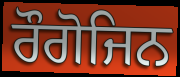
ਰੌਗੋਜਿਨ